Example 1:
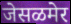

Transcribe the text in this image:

जेसळमेर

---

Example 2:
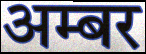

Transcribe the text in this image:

अम्बर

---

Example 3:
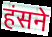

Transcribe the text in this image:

हंसने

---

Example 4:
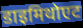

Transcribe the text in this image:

डाइमिथोएट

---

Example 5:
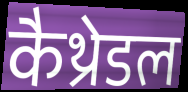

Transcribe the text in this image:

कैथ्रेडल